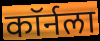
कॉर्नला